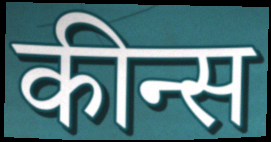
कीन्स